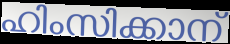
ഹിംസിക്കാന്